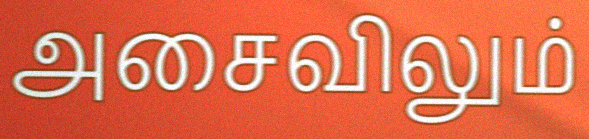
அசைவிலும்